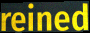
reined